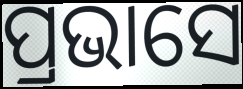
ପ୍ରଭାସେ